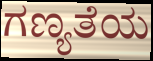
ಗಣ್ಯತೆಯ